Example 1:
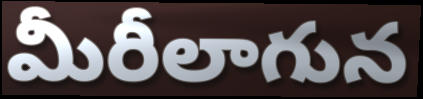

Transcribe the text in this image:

మీరీలాగున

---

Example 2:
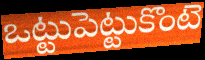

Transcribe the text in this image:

ఒట్టుపెట్టుకొంటె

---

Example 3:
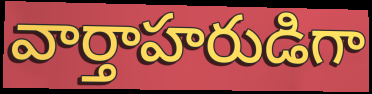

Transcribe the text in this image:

వార్తాహరుడిగా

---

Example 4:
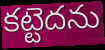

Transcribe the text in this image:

కట్టెదను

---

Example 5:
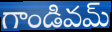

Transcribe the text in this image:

గాండివమ్